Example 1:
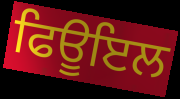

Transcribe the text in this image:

ਫਿਊਇਲ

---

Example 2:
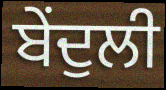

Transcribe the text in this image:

ਬੇਂਦੁਲੀ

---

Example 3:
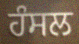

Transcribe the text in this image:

ਹੰਸਲ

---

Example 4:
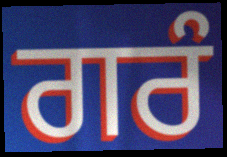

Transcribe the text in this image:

ਗਰੰ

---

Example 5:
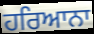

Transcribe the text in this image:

ਹਰਿਆਨਾ